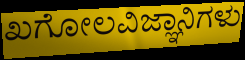
ಖಗೋಲವಿಜ್ಞಾನಿಗಳು